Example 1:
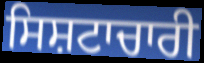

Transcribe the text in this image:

ਸਿਸ਼ਟਾਚਾਰੀ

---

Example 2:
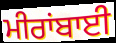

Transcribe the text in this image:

ਮੀਰਾਂਬਾਈ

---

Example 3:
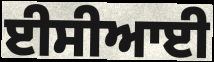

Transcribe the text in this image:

ਈਸੀਆਈ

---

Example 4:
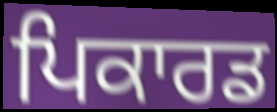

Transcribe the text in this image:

ਪਿਕਾਰਡ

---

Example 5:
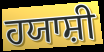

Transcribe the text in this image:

ਹਯਾਸ਼ੀ